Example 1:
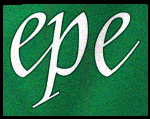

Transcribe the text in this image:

epe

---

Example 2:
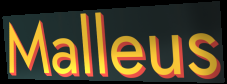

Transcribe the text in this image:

Malleus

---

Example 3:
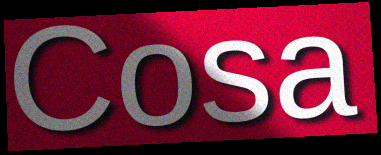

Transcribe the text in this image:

Cosa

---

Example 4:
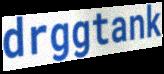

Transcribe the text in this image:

drggtank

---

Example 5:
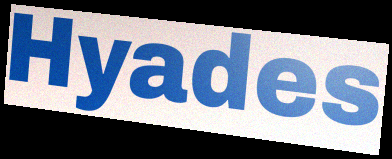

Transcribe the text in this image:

Hyades